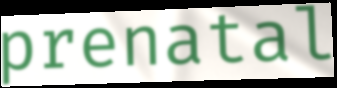
prenatal